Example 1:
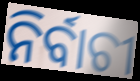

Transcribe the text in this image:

ନିର୍ବାଚୀ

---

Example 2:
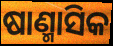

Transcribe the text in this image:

ଷାଣ୍ମାସିକ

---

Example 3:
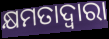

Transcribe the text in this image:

କ୍ଷମତାଦ୍ୱାରା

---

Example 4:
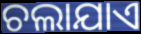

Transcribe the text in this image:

ଚଲାଯାଏ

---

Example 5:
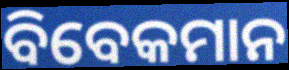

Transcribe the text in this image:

ବିବେକମାନ